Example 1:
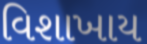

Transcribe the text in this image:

વિશાખાય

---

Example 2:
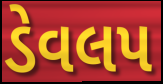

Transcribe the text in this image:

ડેવલપ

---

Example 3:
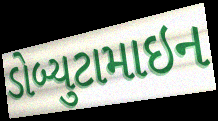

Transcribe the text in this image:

ડોબ્યુટામાઇન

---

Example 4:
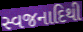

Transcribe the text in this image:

સ્વજનાદિથી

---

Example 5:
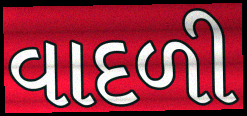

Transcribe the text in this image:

વાદળી